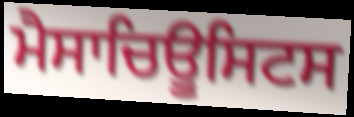
ਮੈਸਾਚਿਊਸਿਟਸ